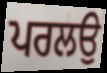
ਪਰਲਉ